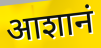
आशानं